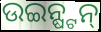
ଉଇନ୍ଷ୍ଟନ୍